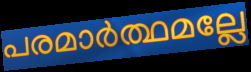
പരമാർത്ഥമല്ലേ